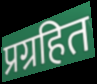
प्रग्रहित